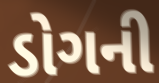
ડોગની